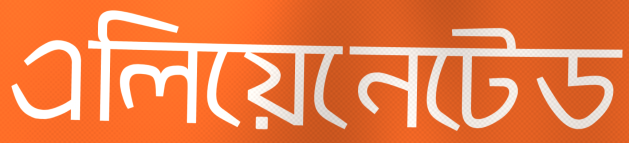
এলিয়েনেটেড